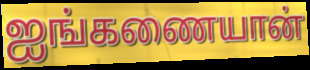
ஐங்கணையான்